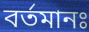
বর্তমানঃ